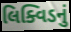
લિક્વિડનું